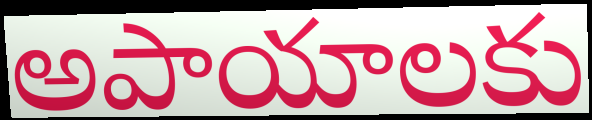
అపాయాలకు